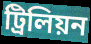
ট্রিলিয়ন